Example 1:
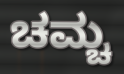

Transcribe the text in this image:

ಚಮ್ಚ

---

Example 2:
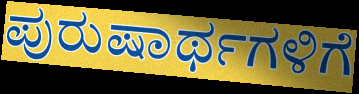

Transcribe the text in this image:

ಪುರುಷಾರ್ಥಗಳಿಗೆ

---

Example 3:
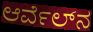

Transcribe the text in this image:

ಆರ್ವೆಲ್‍ನ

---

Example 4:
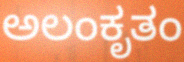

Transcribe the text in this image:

ಅಲಂಕೃತಂ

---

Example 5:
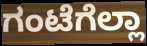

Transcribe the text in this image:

ಗಂಟೆಗೆಲ್ಲಾ